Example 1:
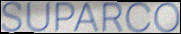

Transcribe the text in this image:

SUPARCO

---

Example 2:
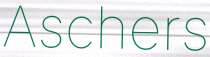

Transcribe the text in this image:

Aschers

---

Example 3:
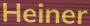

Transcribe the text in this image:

Heiner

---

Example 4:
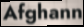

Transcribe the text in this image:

Afghann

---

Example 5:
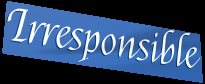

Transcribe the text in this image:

Irresponsible